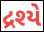
દ્રશ્યે